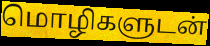
மொழிகளுடன்